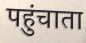
पहुंचाता